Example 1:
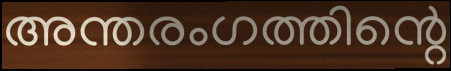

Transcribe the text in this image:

അന്തരംഗത്തിന്റെ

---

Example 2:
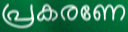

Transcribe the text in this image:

പ്രകരണേ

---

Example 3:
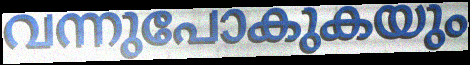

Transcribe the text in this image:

വന്നുപോകുകയും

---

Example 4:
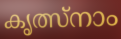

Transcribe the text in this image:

കൃത്സ്നാം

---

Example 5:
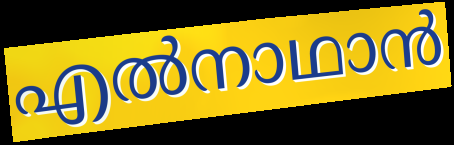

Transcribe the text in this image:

എൽനാഥാൻ